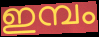
ഇമ്പം